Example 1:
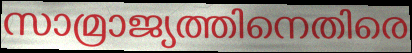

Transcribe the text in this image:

സാമ്രാജ്യത്തിനെതിരെ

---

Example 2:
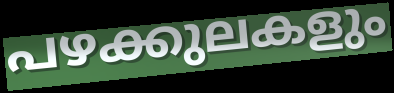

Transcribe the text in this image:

പഴക്കുലകളും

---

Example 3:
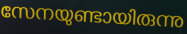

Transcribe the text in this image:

സേനയുണ്ടായിരുന്നു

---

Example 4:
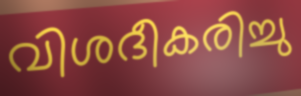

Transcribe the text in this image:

വിശദീകരിച്ചു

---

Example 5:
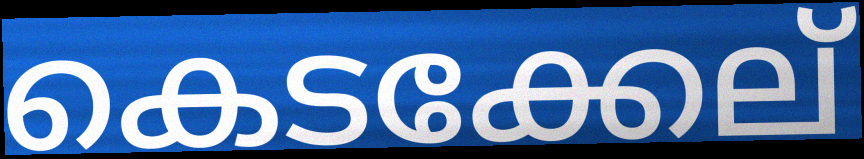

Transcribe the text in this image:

കെടക്കേല്